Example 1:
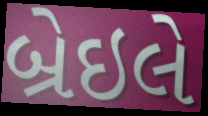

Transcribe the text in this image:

બ્રેઇલે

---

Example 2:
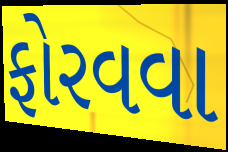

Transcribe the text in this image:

ફોરવવા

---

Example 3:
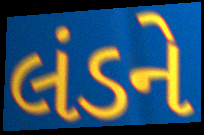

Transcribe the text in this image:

લંડને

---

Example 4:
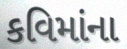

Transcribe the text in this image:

કવિમાંના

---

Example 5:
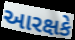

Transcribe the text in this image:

આરક્ષકે